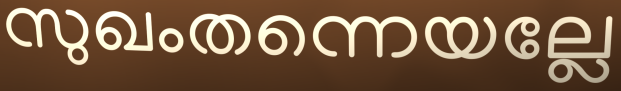
സുഖംതന്നെയല്ലേ